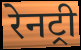
रेनट्री